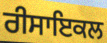
ਰੀਸਾਇਕਲ